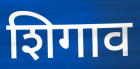
शिगाव